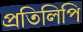
প্ৰতিলিপি